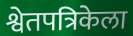
श्वेतपत्रिकेला